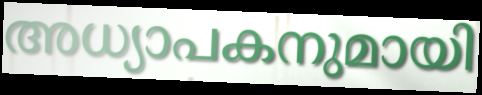
അധ്യാപകനുമായി